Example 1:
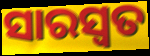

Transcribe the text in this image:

ସାରସ୍ବତ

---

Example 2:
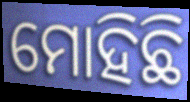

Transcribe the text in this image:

ମୋହିଛି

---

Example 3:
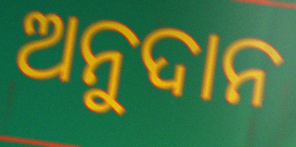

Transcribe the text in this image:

ଅନୁଦାନ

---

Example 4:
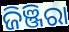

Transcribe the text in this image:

ଜିଞ୍ଜିରା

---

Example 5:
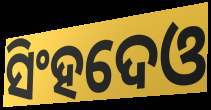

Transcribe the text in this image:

ସିଂହଦେଓ